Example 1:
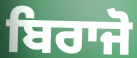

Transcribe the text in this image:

ਬਿਰਾਜੋ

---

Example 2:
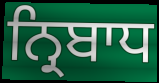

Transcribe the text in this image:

ਨ੍ਰਿਬਾਧ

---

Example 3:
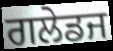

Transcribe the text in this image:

ਗਲੇਡਜ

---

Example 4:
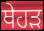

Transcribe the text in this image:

ਥੇਹੜ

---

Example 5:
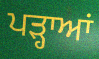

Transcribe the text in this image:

ਪੜ੍ਹਾਆਂ